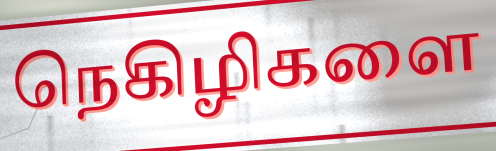
நெகிழிகளை